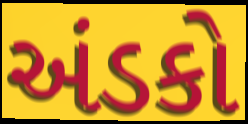
અંડકો